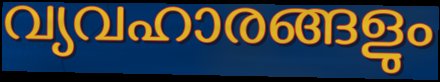
വ്യവഹാരങ്ങളും